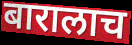
बारालाच